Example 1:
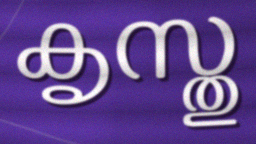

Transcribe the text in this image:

കൃസ്തു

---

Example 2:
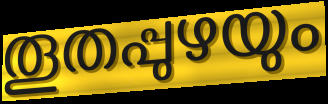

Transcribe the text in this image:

തൂതപ്പുഴയും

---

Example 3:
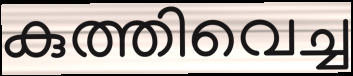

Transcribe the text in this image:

കുത്തിവെച്ച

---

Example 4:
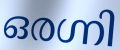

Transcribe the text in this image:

ഒരഗ്നി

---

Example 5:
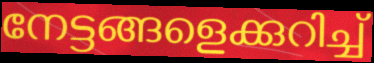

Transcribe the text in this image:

നേട്ടങ്ങളെക്കുറിച്ച്